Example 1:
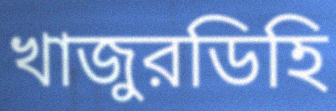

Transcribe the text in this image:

খাজুরডিহি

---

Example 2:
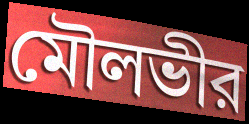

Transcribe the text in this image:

মৌলভীর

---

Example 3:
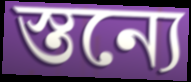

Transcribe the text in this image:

স্তন্যে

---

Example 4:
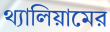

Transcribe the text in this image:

থ্যালিয়ামের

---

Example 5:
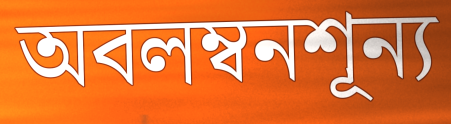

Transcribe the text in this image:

অবলম্বনশূন্য